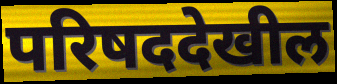
परिषददेखील